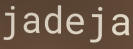
jadeja